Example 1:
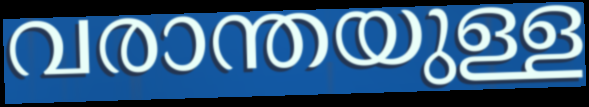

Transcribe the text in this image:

വരാന്തയുള്ള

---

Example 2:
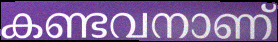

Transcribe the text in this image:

കണ്ടവനാണ്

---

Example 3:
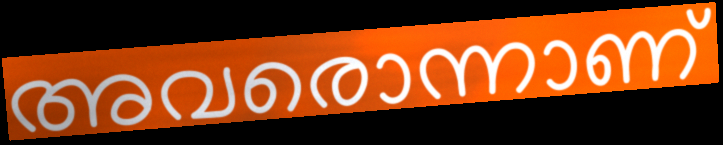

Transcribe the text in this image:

അവരൊന്നാണ്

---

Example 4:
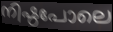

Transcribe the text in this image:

നിഷ്ഠപോലെ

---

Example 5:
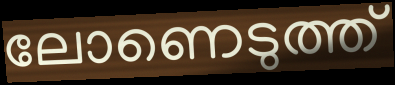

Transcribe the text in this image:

ലോണെടുത്ത്